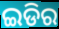
ଇଡିର